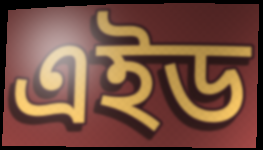
এইড